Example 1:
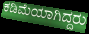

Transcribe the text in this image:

ಕಡಿಮೆಯಾಗಿದ್ದರು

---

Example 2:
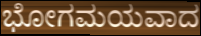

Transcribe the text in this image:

ಭೋಗಮಯವಾದ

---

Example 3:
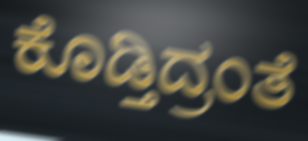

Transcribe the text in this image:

ಕೊಡ್ತಿದ್ರಂತೆ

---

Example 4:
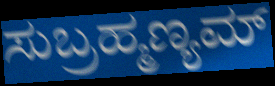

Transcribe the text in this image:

ಸುಬ್ರಹ್ಮಣ್ಯಮ್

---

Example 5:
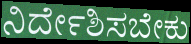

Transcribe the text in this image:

ನಿರ್ದೇಶಿಸಬೇಕು